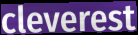
cleverest